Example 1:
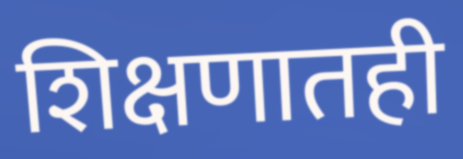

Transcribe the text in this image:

शिक्षणातही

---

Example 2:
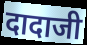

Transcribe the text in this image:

दादाजी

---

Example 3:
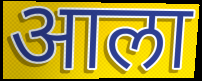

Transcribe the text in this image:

आला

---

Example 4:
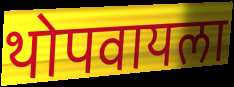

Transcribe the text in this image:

थोपवायला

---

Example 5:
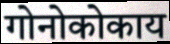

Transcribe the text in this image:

गोनोकोकाय